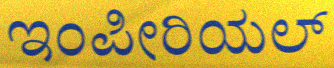
ಇಂಪೀರಿಯಲ್